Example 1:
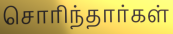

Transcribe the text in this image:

சொரிந்தார்கள்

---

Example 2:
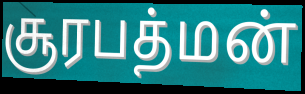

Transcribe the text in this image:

சூரபத்மன்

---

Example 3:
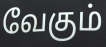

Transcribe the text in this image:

வேகும்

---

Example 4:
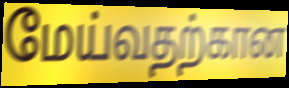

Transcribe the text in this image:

மேய்வதற்கான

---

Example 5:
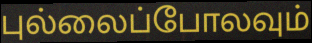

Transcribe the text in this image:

புல்லைப்போலவும்